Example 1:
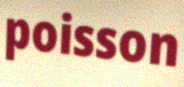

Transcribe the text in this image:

poisson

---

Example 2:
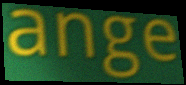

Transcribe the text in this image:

ange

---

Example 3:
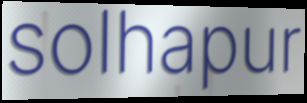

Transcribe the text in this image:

solhapur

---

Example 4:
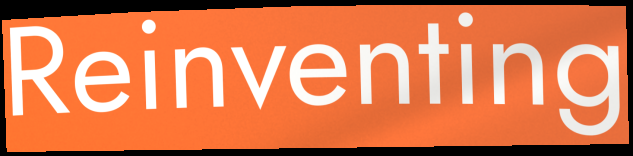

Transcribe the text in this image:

Reinventing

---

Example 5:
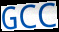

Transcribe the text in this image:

GCC